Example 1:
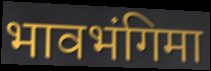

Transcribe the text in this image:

भावभंगिमा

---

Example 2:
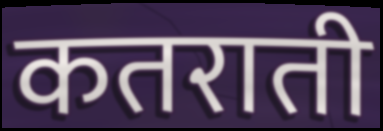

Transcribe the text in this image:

कतराती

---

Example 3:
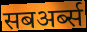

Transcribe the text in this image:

सबअर्ब्स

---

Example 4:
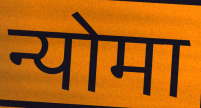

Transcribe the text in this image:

न्योमा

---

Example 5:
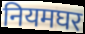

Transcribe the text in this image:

नियमघर